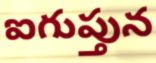
ఐగుప్తున